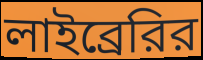
লাইব্রেরির